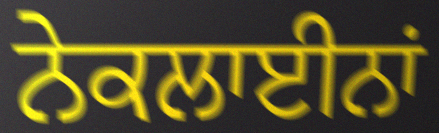
ਨੇਕਲਾਈਨਾਂ